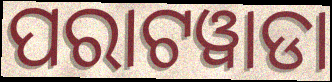
ପରାଟୱାଡା